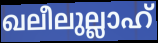
ഖലീലുല്ലാഹ്